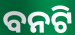
ବନଟି